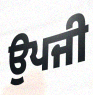
ਉਪਜੀ